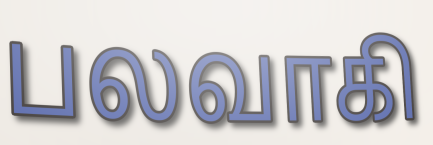
பலவாகி